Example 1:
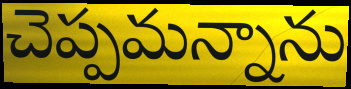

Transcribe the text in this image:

చెప్పమన్నాను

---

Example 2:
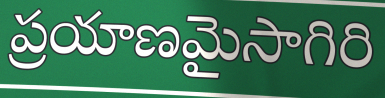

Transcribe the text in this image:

ప్రయాణమైసాగిరి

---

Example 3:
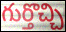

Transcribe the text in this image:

గుర్తొచ్చి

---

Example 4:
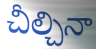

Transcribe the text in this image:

చీల్చినా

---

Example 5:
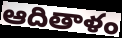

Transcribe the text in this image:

ఆదితాళం